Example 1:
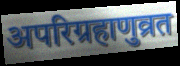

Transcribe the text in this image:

अपरिग्रहाणुव्रत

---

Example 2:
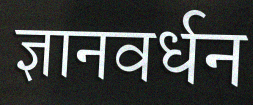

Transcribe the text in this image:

ज्ञानवर्धन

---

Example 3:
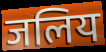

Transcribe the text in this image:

जलिय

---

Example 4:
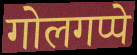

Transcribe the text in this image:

गोलगप्पे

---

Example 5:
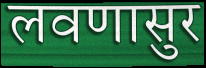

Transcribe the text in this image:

लवणासुर